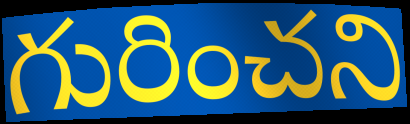
గురించని